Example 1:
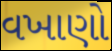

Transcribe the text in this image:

વખાણો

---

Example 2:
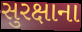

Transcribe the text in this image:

સુરક્ષાના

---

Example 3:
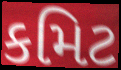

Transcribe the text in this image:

કમિટ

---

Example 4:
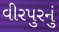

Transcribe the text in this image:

વીરપુરનું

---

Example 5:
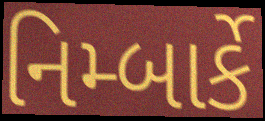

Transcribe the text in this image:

નિમ્બાર્કે